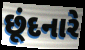
છૂંદનારે